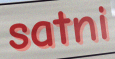
satni